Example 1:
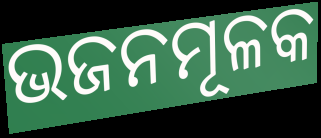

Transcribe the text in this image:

ଭଜନମୂଳକ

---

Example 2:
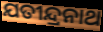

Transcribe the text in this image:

ଯତୀନ୍ଦ୍ରନାଥ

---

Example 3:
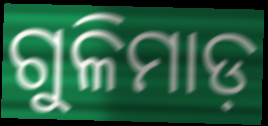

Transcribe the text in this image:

ଗୁଳିମାଡ଼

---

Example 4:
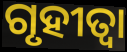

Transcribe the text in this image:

ଗୃହୀତ୍ଵା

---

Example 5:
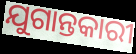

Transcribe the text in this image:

ଯୁଗାନ୍ତକାରୀ